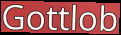
Gottlob